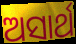
ଅସାର୍ଥ